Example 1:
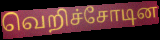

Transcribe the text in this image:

வெறிச்சோடின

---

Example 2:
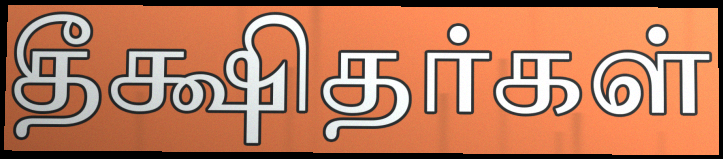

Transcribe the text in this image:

தீக்ஷிதர்கள்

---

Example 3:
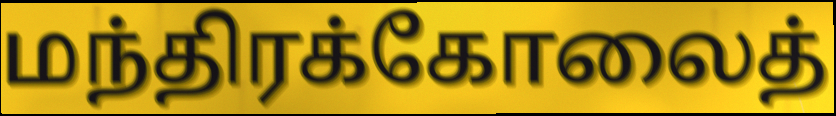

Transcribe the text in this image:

மந்திரக்கோலைத்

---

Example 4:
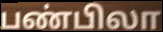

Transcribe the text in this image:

பண்பிலா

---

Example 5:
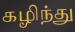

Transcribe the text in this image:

கழிந்து